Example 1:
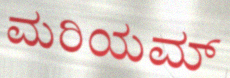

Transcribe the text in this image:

ಮರಿಯಮ್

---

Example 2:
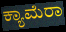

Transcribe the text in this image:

ಕ್ಯಾಮೆರಾ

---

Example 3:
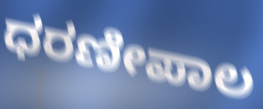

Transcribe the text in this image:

ಧರಣೀಪಾಲ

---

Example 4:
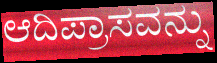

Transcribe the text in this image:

ಆದಿಪ್ರಾಸವನ್ನು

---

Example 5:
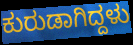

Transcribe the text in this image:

ಕುರುಡಾಗಿದ್ದಳು